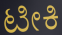
ಟೀಕಿ